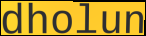
dholun